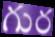
గుర